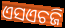
ଏସଏଚଜି